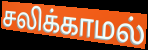
சலிக்காமல்